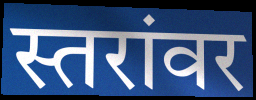
स्तरांवर